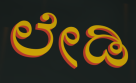
ಲೇಡಿ